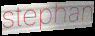
stephan